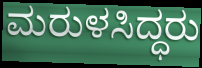
ಮರುಳಸಿದ್ಧರು